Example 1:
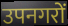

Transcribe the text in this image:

उपनगरों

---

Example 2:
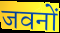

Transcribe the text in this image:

जवनों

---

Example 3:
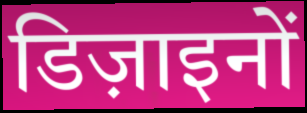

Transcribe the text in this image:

डिज़ाइनों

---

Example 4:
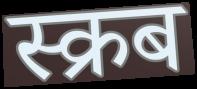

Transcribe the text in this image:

स्क्रब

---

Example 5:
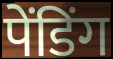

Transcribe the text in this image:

पेंडिंग